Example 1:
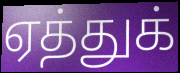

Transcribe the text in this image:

ஏத்துக்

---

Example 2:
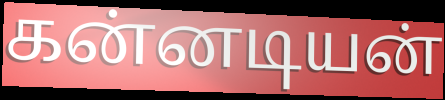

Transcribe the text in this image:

கன்னடியன்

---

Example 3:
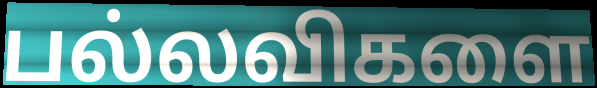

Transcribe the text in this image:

பல்லவிகளை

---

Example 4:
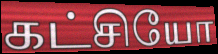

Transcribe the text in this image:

கட்சியோ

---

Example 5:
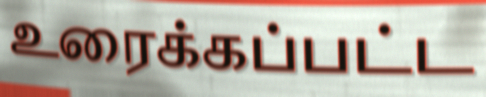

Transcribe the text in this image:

உரைக்கப்பட்ட